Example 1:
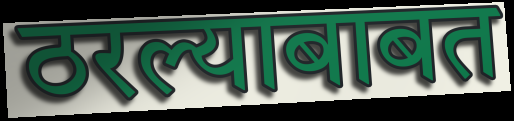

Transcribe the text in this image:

ठरल्याबाबत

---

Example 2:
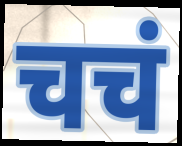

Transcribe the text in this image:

चचं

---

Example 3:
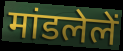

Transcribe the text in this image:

मांडलेलें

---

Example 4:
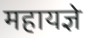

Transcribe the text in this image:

महायज्ञे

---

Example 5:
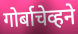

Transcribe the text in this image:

गोर्बाचेव्हने